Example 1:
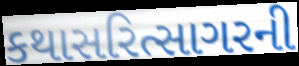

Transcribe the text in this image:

કથાસરિત્સાગરની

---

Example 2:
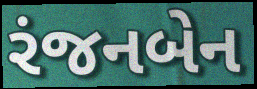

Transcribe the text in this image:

રંજનબેન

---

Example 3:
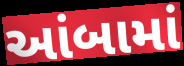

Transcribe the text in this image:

આંબામાં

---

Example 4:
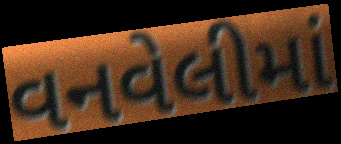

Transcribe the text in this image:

વનવેલીમાં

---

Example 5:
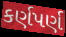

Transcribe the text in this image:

કર્ણપર્ણ